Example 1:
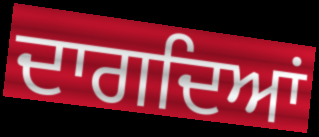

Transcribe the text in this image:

ਦਾਗਦਿਆਂ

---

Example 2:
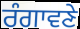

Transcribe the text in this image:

ਰੰਗਾਵਣੇ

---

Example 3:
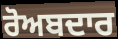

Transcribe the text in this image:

ਰੋਅਬਦਾਰ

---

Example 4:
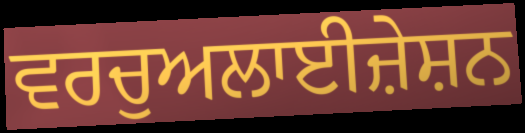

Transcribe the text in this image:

ਵਰਚੁਅਲਾਈਜ਼ੇਸ਼ਨ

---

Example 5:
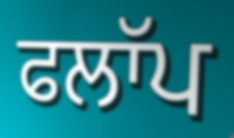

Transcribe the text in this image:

ਫਲਾੱਪ